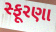
સ્ફૂરણા